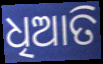
ଧିଆତି